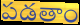
పడతాం